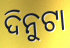
ଦିନୁଟା